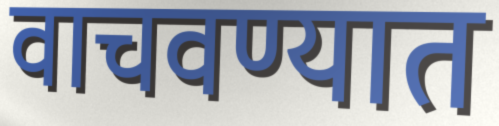
वाचवण्यात